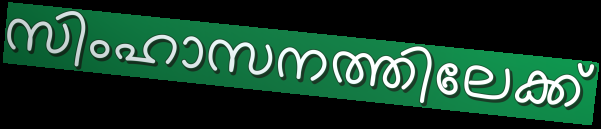
സിംഹാസനത്തിലേക്ക്